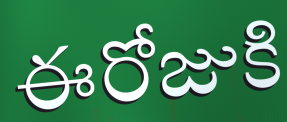
ఈరోజుకి